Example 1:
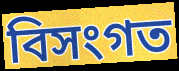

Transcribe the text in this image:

বিসংগত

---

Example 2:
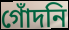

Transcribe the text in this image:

গোঁদনি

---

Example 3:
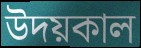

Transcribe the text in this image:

উদয়কাল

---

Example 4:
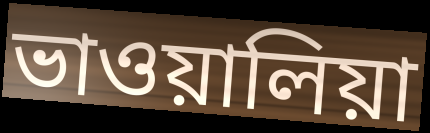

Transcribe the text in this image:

ভাওয়ালিয়া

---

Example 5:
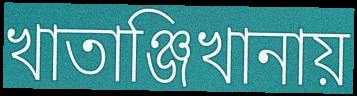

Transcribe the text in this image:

খাতাঞ্জিখানায়